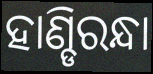
ହାଣ୍ଡିରନ୍ଧା